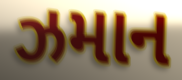
ઝમાન